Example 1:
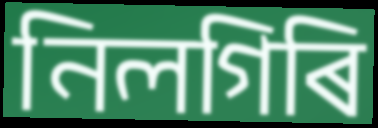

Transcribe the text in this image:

নিলগিৰি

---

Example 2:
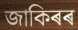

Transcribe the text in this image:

জাকিৰৰ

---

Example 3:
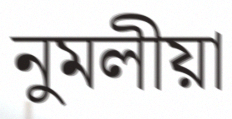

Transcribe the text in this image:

নুমলীয়া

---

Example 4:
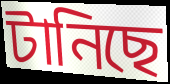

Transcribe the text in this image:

টানিছে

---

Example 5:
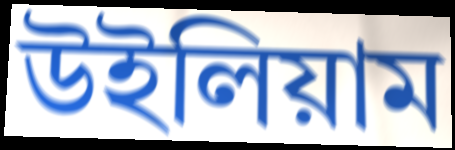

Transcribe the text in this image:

উইলিয়াম